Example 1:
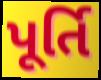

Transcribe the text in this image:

પૂર્તિ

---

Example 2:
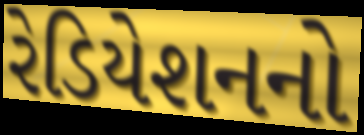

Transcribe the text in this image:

રેડિયેશનનો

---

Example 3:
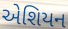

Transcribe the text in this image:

એશિયન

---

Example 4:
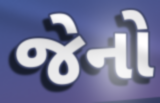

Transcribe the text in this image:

જેનો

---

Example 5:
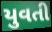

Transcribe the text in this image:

યુવતી